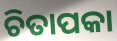
ଚିତାପକା